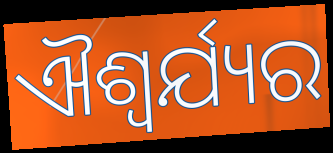
ଐଶ୍ଵର୍ଯ୍ୟର